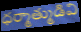
ధర్మాత్ముడివి